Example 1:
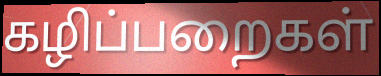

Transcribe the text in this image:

கழிப்பறைகள்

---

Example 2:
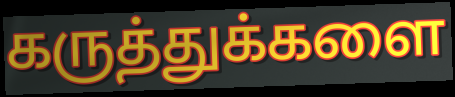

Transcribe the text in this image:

கருத்துக்களை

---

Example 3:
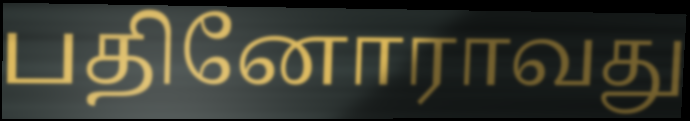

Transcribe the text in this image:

பதினோராவது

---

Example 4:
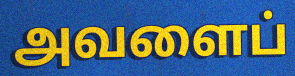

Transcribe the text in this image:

அவளைப்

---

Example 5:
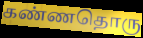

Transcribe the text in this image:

கண்ணதொரு